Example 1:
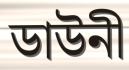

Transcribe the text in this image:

ডাউনী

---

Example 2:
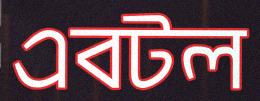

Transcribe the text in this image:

এবটল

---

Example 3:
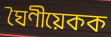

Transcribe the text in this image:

ঘৈণীয়েকক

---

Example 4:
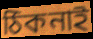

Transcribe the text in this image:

ঠিকনাই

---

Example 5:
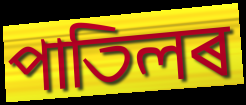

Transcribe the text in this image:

পাতিলৰ